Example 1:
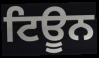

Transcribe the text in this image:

ਟਿਊਨ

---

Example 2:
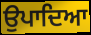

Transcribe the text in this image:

ਉਪਾਦਿਆ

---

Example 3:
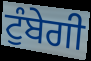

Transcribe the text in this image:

ਟੁੰਬੇਗੀ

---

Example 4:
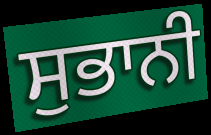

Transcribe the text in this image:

ਸੁਭਾਨੀ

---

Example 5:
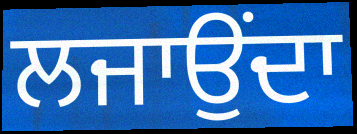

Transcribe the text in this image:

ਲਜਾਉਂਦਾ